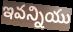
ఇవన్నియు